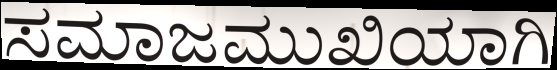
ಸಮಾಜಮುಖಿಯಾಗಿ